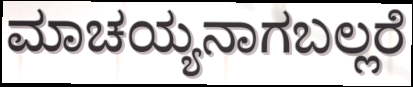
ಮಾಚಯ್ಯನಾಗಬಲ್ಲರೆ